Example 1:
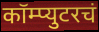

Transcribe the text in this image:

कॉम्प्युटरचं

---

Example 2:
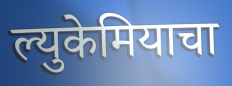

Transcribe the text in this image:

ल्युकेमियाचा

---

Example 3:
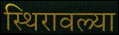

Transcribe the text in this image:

स्थिरावल्या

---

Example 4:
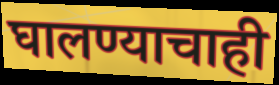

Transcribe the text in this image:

घालण्याचाही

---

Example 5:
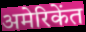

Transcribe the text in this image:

अमेरिकेंत